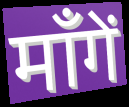
माँगें